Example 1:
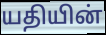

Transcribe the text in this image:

யதியின்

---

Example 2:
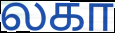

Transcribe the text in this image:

லகா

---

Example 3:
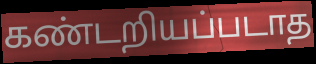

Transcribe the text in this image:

கண்டறியப்படாத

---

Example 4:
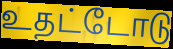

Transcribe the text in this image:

உதட்டோடு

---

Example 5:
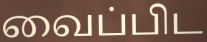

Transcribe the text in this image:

வைப்பிட